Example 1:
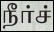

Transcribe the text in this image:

நீர்ச்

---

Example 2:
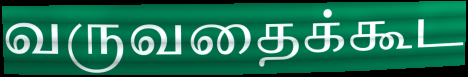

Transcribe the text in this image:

வருவதைக்கூட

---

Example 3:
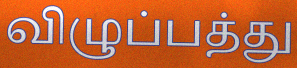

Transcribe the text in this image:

விழுப்பத்து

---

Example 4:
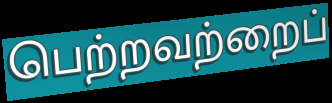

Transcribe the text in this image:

பெற்றவற்றைப்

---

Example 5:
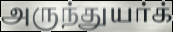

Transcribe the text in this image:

அருந்துயர்க்